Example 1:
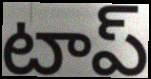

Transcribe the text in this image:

టాప్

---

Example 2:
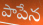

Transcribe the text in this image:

పాపేన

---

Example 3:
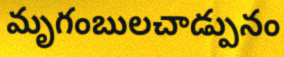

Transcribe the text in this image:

మృగంబులచాడ్పునం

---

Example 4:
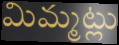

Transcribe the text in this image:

మిమ్మట్లు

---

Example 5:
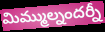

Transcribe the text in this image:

మిమ్ముల్నందర్నీ